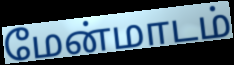
மேன்மாடம்